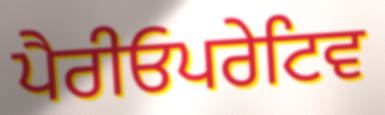
ਪੈਰੀਓਪਰੇਟਿਵ